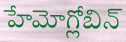
హేమోగ్లోబిన్